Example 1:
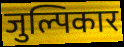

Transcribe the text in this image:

जुल्पिकार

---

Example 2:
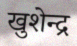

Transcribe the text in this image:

खुशेन्द्र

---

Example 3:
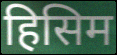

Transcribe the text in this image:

हिसिम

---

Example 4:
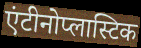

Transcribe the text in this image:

एंटीनोप्लास्टिक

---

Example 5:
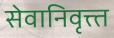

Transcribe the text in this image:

सेवानिवृत्त्त